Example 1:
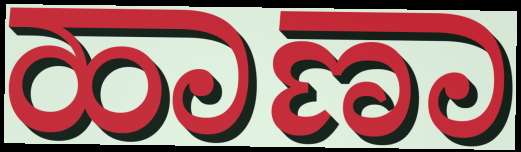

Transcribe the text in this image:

ಹಾಣಾ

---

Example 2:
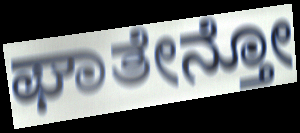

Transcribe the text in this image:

ಘಾತೇನ್ತೋ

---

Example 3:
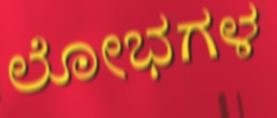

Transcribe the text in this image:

ಲೋಭಗಳ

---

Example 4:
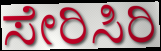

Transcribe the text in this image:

ಸೇರಿಸಿರಿ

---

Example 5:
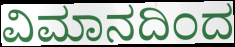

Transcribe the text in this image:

ವಿಮಾನದಿಂದ